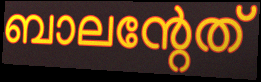
ബാലന്റേത്